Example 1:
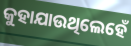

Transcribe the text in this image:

କୁହାଯାଉଥିଲେହେଁ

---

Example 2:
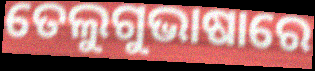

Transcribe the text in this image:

ତେଲୁଗୁଭାଷାରେ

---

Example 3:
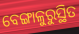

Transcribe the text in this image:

ବେଙ୍ଗାଳୁରୁସ୍ଥିତ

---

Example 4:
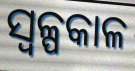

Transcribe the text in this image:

ସ୍ୱଳ୍ପକାଳ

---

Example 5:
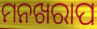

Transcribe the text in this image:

ମନଖରାପ